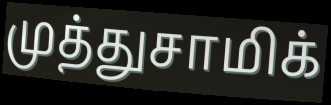
முத்துசாமிக்